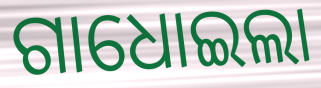
ଗାଧୋଇଲା